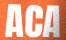
ACA